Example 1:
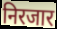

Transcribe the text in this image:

निरजार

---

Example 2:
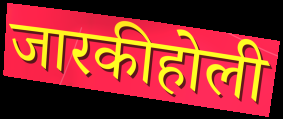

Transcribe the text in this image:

जारकीहोली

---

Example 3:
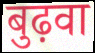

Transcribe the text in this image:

बुढ़वा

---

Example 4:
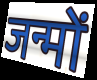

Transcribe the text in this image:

जन्मों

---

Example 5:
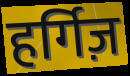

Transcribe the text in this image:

हर्गिज़